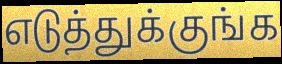
எடுத்துக்குங்க